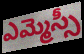
ఎమ్మెస్సీ